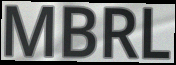
MBRL